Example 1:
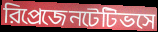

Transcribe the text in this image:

রিপ্রেজেনটেটিভসে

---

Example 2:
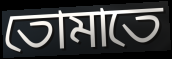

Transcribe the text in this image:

তোমাতে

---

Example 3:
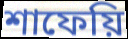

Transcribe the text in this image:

শাফেয়ি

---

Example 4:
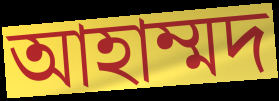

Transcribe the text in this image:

আহাম্মদ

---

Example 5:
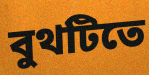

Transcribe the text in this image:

বুথটিতে